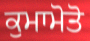
ਕੁਮਾਮੋਤੋ